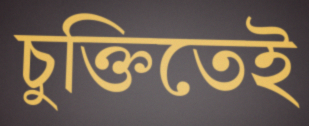
চুক্তিতেই